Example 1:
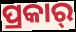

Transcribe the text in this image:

ପ୍ରକାର୍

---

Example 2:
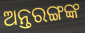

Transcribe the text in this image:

ଅନ୍ତରଙ୍ଗଙ୍କ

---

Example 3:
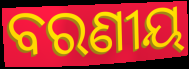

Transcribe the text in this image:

ବରଣୀୟ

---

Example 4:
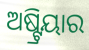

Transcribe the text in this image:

ଅଷ୍ଟ୍ରିୟାର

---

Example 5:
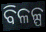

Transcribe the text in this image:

ବିଳଳ୍ପ